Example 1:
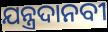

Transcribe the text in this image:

ଯନ୍ତ୍ରଦାନବୀ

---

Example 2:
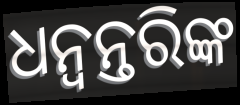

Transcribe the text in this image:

ଧନ୍ୱନ୍ତରିଙ୍କ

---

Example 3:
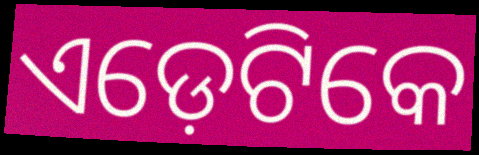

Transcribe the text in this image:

ଏଡ଼େଟିକେ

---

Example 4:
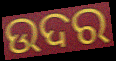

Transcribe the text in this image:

ଉଦର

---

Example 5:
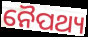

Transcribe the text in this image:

ନୈପଥ୍ୟ